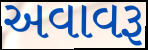
અવાવરૂ